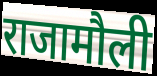
राजामौली